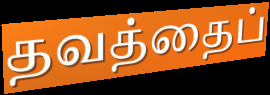
தவத்தைப்